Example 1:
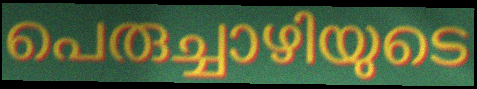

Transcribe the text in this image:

പെരുച്ചാഴിയുടെ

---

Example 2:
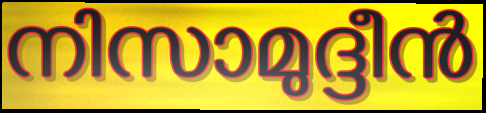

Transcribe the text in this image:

നിസാമുദ്ദീൻ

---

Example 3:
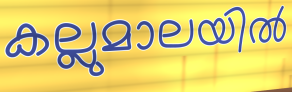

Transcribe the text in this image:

കല്ലുമാലയിൽ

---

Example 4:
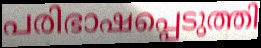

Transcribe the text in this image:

പരിഭാഷപ്പെടുത്തി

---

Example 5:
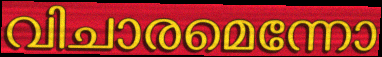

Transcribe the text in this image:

വിചാരമെന്നോ